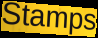
Stamps